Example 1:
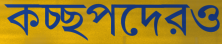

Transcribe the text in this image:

কচ্ছপদেরও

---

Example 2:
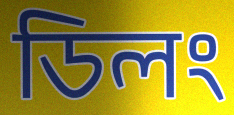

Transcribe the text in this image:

ডিলং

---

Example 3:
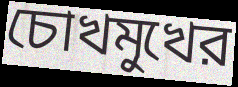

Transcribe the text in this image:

চোখমুখের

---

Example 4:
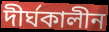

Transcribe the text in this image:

দীর্ঘকালীন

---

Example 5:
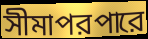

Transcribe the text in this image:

সীমাপরপারে